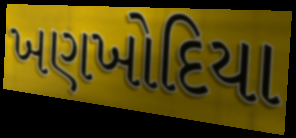
ખણખોદિયા